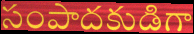
సంపాదకుడిగా